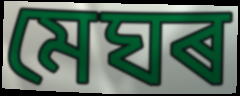
মেঘৰ